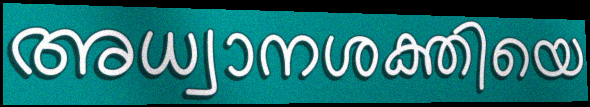
അധ്വാനശക്തിയെ